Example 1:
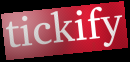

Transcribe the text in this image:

tickify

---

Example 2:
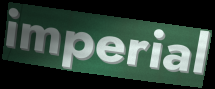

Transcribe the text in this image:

imperial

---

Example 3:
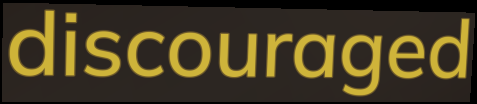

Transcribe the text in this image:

discouraged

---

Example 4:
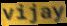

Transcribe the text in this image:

vijay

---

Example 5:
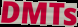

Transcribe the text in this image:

DMTs